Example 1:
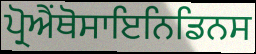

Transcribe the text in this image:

ਪ੍ਰੋਐਂਥੋਸਾਇਨਿਡਿਨਸ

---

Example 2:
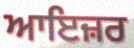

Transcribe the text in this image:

ਆਇਜ਼ਰ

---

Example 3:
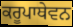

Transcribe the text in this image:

ਕਰੂਪਾਥੇਵਨ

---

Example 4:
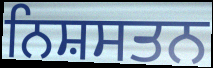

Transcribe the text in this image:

ਨਿਸ਼ਸਤਨ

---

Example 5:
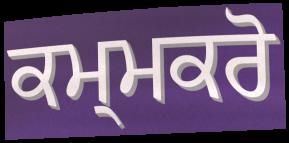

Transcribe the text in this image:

ਕਮ੍ਮਕਰੋ